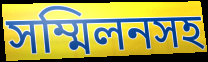
সম্মিলনসহ